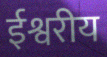
ईश्वरीय